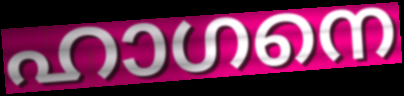
ഹാഗനെ